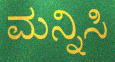
ಮನ್ನಿಸಿ